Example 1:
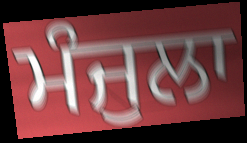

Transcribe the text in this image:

ਮੰਜੁਲਾ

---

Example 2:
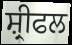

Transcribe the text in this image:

ਸ਼੍ਰੀਫਲ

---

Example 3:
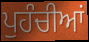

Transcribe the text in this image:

ਪੁਹੰਚੀਆਂ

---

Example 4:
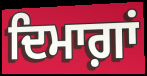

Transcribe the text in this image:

ਦਿਮਾਗ਼ਾਂ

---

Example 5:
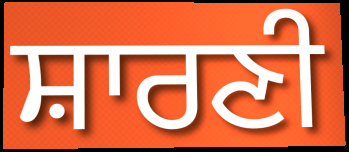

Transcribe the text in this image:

ਸ਼ਾਰਣੀ